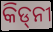
କିଡ୍‌ନୀ